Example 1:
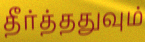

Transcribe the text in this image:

தீர்த்ததுவும்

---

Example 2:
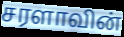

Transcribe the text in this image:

சரளாவின்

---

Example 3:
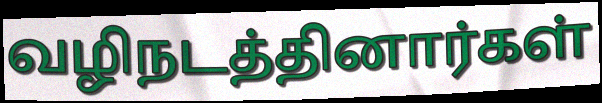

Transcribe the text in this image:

வழிநடத்தினார்கள்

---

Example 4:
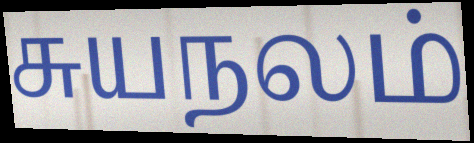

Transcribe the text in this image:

சுயநலம்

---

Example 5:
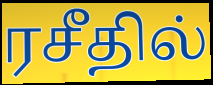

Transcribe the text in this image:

ரசீதில்